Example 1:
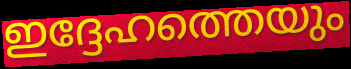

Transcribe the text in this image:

ഇദ്ദേഹത്തെയും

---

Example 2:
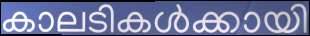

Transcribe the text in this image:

കാലടികൾക്കായി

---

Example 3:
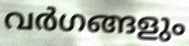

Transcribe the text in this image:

വർഗങ്ങളും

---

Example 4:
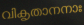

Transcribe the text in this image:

വികൃതാനനാഃ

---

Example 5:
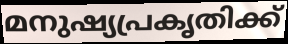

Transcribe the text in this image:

മനുഷ്യപ്രകൃതിക്ക്